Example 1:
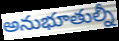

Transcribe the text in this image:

అనుభూతుల్నీ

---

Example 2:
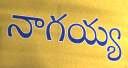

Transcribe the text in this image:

నాగయ్య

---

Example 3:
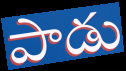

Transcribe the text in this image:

పాడు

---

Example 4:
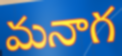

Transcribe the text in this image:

మనాగ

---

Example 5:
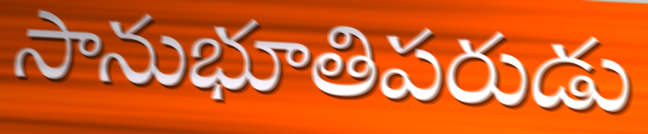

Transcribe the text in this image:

సానుభూతిపరుడు